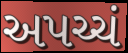
અપચ્ચં